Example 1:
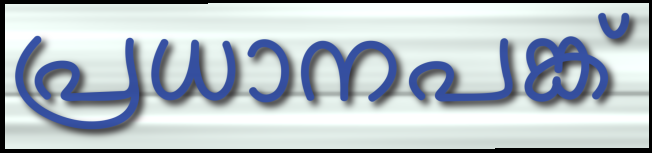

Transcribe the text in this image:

പ്രധാനപങ്ക്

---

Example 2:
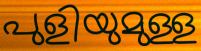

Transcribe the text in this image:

പുളിയുമുള്ള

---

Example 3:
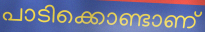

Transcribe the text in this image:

പാടിക്കൊണ്ടാണ്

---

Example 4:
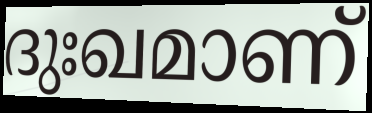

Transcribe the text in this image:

ദുഃഖമാണ്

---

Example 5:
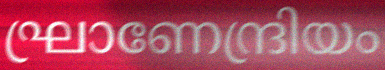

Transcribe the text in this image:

ഘ്രാണേന്ദ്രിയം